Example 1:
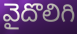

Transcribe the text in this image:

వైదొలిగి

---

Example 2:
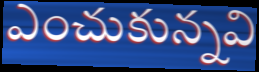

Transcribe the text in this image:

ఎంచుకున్నవి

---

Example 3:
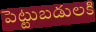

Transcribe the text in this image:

పెట్టుబడులకి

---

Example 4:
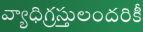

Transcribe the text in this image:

వ్యాధిగ్రస్తులందరికీ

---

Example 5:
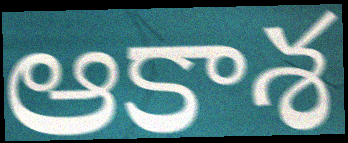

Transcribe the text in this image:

ఆకాశ